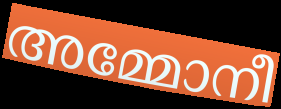
അമ്മോനീ